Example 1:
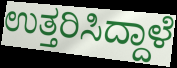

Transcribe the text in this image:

ಉತ್ತರಿಸಿದ್ದಾಳೆ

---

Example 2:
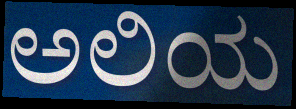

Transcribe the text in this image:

ಅಲಿಯ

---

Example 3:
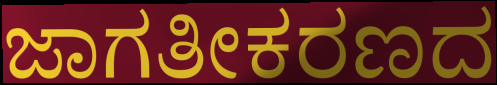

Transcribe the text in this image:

ಜಾಗತೀಕರಣದ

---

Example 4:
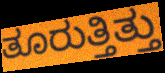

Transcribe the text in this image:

ತೂರುತ್ತಿತ್ತು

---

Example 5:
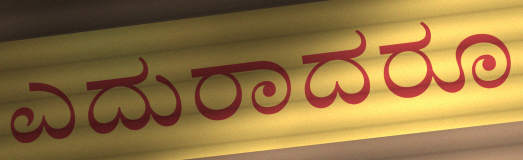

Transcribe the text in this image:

ಎದುರಾದರೂ